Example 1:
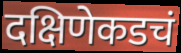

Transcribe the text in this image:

दक्षिणेकडचं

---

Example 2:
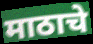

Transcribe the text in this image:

माठाचे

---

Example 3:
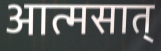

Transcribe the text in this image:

आत्मसात्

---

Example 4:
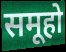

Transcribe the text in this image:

समूहो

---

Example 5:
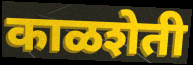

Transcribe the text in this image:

काळशेती